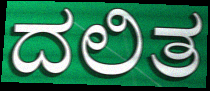
ದಲಿತ